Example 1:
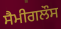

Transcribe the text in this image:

ਸੈਮੀਗਲੌਸ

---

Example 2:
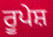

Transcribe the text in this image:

ਰੂਪੇਸ਼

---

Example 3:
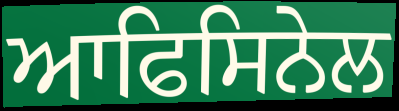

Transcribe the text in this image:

ਆਫਿਸਿਨੇਲ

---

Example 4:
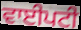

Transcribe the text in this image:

ਵਾਈਪਟੀ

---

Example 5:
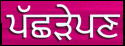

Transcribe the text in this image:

ਪੱਛੜੇਪਣ